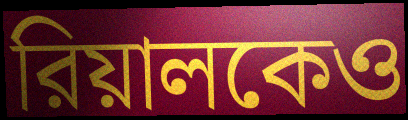
রিয়ালকেও